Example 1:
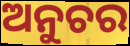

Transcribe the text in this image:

ଅନୁଚର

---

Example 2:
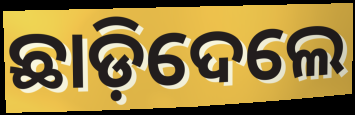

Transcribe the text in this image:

ଛାଡ଼ିଦେଲେ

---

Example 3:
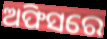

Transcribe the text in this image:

ଅଫିସରେ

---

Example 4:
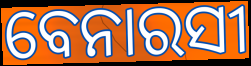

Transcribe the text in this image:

ବେନାରସୀ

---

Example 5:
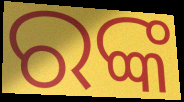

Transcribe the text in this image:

ରଙ୍କ